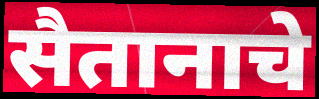
सैतानाचे